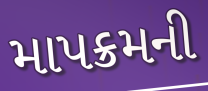
માપક્રમની